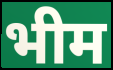
भीम